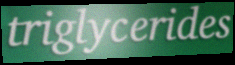
triglycerides